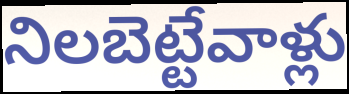
నిలబెట్టేవాళ్లు